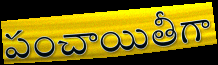
పంచాయితీగా